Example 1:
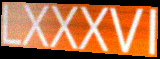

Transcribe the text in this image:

LXXXVI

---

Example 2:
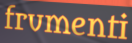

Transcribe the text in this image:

frumenti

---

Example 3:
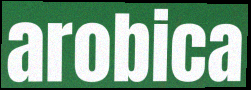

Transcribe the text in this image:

arobica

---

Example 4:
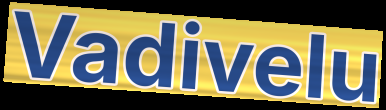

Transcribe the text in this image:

Vadivelu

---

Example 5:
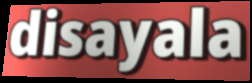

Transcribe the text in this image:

disayala